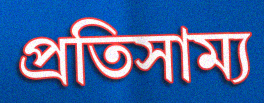
প্রতিসাম্য